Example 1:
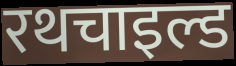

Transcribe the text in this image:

रथचाइल्ड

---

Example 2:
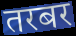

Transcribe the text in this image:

तरबर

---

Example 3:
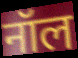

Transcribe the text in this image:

नॉल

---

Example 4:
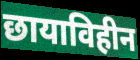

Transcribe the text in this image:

छायाविहीन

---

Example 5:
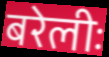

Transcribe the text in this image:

बरेलीः